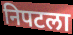
निपटला